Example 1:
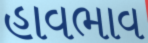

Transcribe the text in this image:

હાવભાવ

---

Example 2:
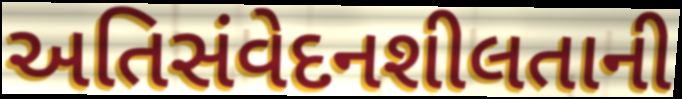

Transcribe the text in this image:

અતિસંવેદનશીલતાની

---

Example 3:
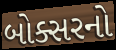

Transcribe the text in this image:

બોક્સરનો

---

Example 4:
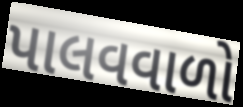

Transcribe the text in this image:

પાલવવાળો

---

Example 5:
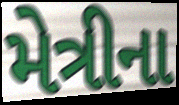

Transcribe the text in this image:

મેત્રીના